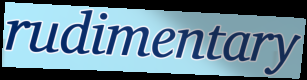
rudimentary